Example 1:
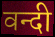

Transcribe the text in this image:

वन्दी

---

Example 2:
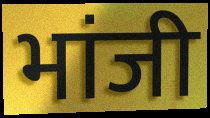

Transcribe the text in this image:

भांजी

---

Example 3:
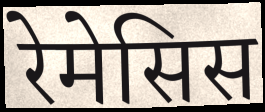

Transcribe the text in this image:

रेमेसिस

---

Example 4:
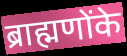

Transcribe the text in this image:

ब्राह्मणोंके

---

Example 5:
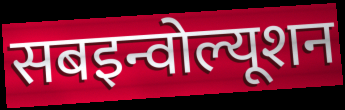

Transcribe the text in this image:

सबइन्वोल्यूशन